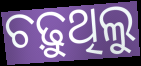
ଚଢ଼ୁଥିଲୁ